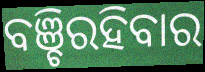
ବଞ୍ଚିରହିବାର